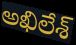
అఖిలేశ్